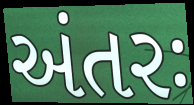
અંતરઃ